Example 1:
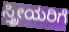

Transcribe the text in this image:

ಸ್ತ್ರೀಯರಿಗೆ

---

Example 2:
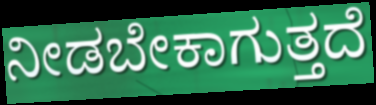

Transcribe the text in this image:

ನೀಡಬೇಕಾಗುತ್ತದೆ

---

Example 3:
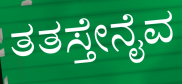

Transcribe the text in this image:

ತತಸ್ತೇನೈವ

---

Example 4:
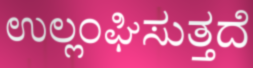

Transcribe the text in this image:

ಉಲ್ಲಂಘಿಸುತ್ತದೆ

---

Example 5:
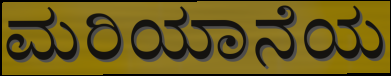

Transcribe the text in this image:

ಮರಿಯಾನೆಯ